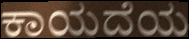
ಕಾಯದೆಯ